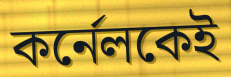
কর্নেলকেই